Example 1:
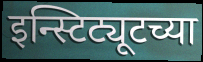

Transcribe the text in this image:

इन्स्टिट्यूटच्या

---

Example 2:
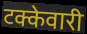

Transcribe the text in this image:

टक्केवारी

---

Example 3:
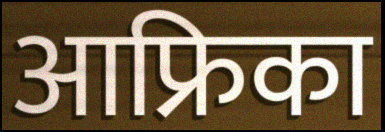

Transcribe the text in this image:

आफ्रिका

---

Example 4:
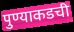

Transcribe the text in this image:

पुण्याकडची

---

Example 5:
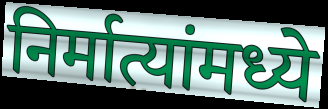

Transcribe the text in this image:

निर्मात्यांमध्ये